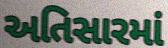
અતિસારમાં